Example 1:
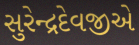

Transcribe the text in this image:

સુરેન્દ્રદેવજીએ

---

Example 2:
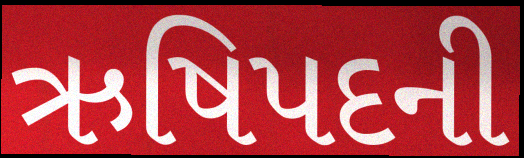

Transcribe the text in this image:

ઋષિપદની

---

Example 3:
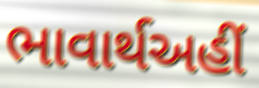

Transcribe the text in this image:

ભાવાર્થઅહીં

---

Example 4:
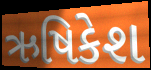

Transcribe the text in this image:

ઋષિકેશ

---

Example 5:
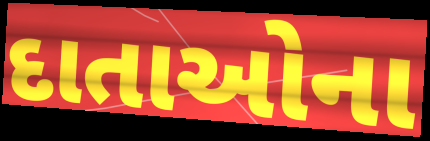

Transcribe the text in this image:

દાતાઓના